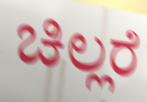
ಚಿಲ್ಲರೆ